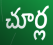
చూర్ల